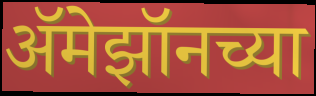
ॲमेझॉनच्या